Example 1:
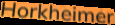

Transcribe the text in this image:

Horkheimer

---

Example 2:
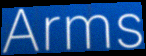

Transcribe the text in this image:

Arms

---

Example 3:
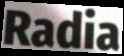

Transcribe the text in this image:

Radia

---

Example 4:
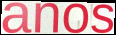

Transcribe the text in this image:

anos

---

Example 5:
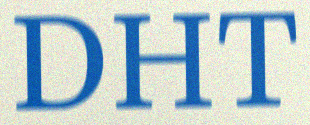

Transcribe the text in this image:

DHT